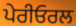
ਪੇਰੀਓਰਲ